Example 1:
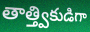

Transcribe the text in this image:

తాత్త్వికుడిగా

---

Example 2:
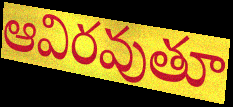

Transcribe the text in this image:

ఆవిరవుతూ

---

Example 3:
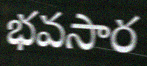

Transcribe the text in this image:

భవసార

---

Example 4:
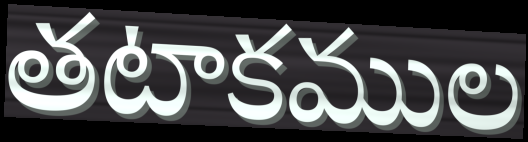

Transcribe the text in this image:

తటాకముల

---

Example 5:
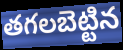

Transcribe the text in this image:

తగలబెట్టిన